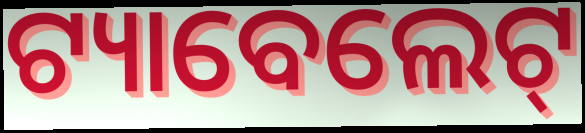
ଟ୍ୟାବେଲେଟ୍